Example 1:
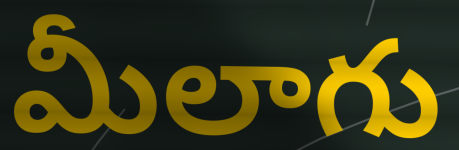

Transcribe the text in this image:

మీలాగు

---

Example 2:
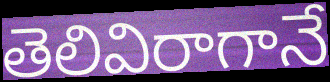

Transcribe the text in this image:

తెలివిరాగానే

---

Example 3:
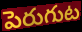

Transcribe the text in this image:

పెరుగుట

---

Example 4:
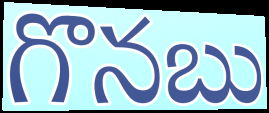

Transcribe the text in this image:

గొనబు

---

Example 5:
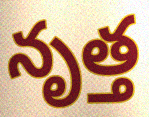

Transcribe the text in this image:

నృత్త